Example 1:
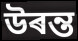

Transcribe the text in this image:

উৰন্ত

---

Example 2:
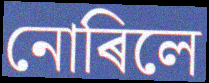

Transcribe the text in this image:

নোৰিলে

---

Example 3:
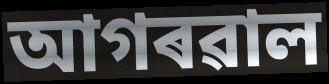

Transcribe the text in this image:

আগৰৱাল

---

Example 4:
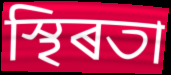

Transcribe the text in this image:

স্থিৰতা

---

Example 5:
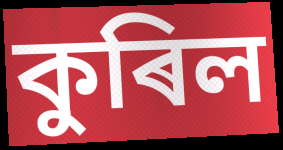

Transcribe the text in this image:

কুৰিল